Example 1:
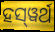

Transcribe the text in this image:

ହସ୍‌ୱର୍ଥ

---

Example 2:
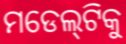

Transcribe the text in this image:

ମଡେଲ୍‌ଟିକୁ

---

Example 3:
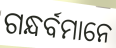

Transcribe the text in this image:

ଗନ୍ଧର୍ବମାନେ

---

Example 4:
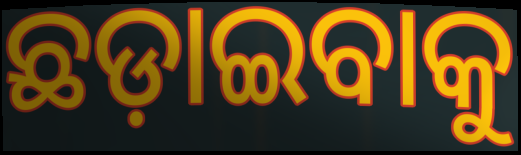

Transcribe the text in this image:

ଛଡ଼ାଇବାକୁ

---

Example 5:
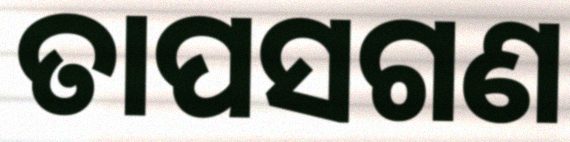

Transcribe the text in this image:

ତାପସଗଣ